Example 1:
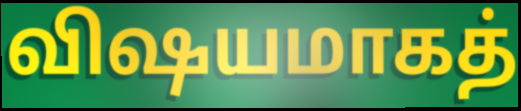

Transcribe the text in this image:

விஷயமாகத்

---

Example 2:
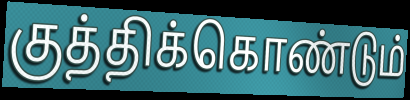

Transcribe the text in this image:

குத்திக்கொண்டும்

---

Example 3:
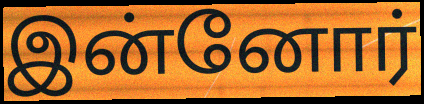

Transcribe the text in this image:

இன்னோர்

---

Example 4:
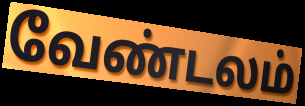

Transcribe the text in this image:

வேண்டலம்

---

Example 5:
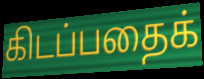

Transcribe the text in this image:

கிடப்பதைக்